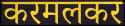
करमलकर